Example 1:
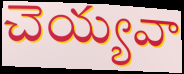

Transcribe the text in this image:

చెయ్యవా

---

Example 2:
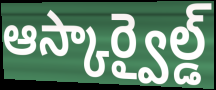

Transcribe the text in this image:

ఆస్కార్వైల్డ్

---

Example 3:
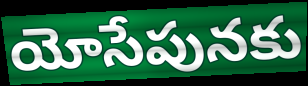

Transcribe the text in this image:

యోసేపునకు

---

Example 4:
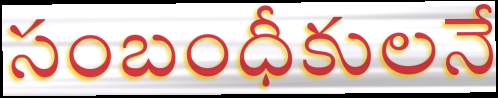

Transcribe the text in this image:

సంబంధీకులనే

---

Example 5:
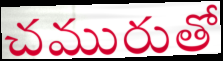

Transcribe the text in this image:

చమురుతో